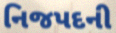
નિજપદની